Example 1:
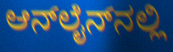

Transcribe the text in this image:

ಆನ್‌ಲೈನ್‌ನಲ್ಲಿ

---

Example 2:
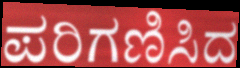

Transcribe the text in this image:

ಪರಿಗಣಿಸಿದ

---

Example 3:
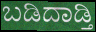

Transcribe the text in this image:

ಬಡಿದಾಡ್ತಿ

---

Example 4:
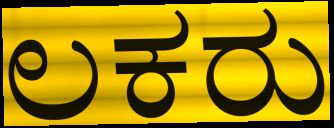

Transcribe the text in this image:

ಲಕರು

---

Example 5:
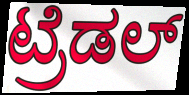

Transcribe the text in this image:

ಟ್ರೆಡಲ್